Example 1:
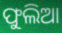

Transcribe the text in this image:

ଫୁଲିଆ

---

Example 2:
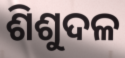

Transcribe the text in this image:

ଶିଶୁଦଳ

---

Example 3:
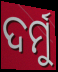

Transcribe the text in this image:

ଦର୍ମୁ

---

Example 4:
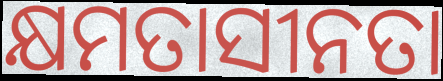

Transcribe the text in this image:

କ୍ଷମତାସୀନତା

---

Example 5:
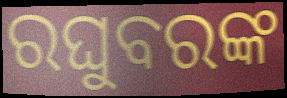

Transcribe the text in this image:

ରଘୁବରଙ୍କ